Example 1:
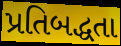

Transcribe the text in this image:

પ્રતિબદ્ધતા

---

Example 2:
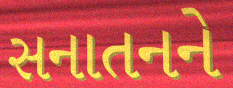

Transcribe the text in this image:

સનાતનને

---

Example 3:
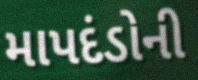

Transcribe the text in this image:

માપદંડોની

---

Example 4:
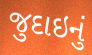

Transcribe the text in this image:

જુદાઇનું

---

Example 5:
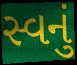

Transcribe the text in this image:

સ્વનું